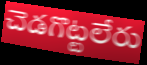
చెడగొట్టలేరు